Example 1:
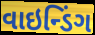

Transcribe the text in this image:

વાઇન્ડિંગ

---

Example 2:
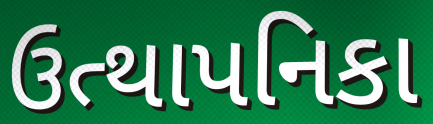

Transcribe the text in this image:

ઉત્થાપનિકા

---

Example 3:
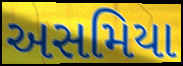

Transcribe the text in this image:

અસમિયા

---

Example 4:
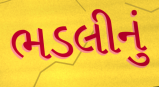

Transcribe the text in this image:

ભડલીનું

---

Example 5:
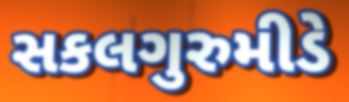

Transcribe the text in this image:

સકલગુરુમીડે